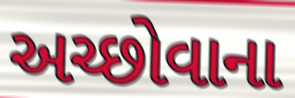
અચ્છોવાના